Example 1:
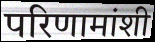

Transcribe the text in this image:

परिणामांशी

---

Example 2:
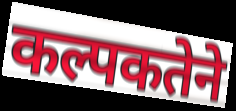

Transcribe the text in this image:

कल्पकतेने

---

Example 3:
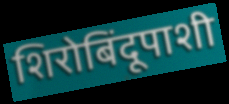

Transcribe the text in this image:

शिरोबिंदूपाशी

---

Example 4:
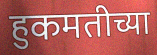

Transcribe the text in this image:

हुकमतीच्या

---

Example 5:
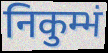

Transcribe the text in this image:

निकुम्भं